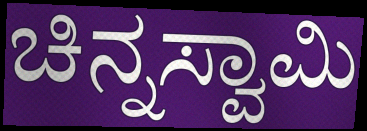
ಚಿನ್ನಸ್ವಾಮಿ